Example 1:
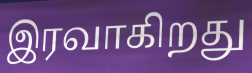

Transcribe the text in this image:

இரவாகிறது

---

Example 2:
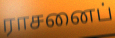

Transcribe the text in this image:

ராசனைப்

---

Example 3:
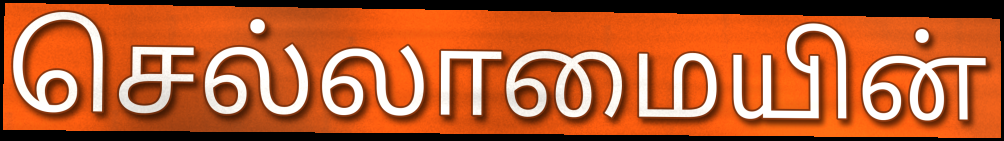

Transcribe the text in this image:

செல்லாமையின்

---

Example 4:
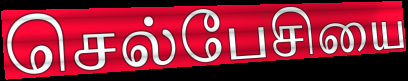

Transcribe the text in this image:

செல்பேசியை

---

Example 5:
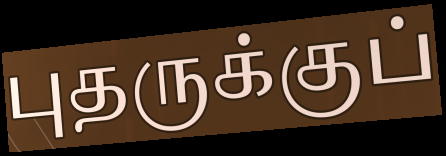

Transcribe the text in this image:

புதருக்குப்